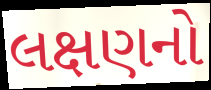
લક્ષણનો